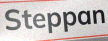
Steppan